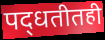
पद्धतीतही